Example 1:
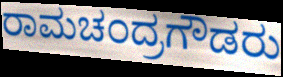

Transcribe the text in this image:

ರಾಮಚಂದ್ರಗೌಡರು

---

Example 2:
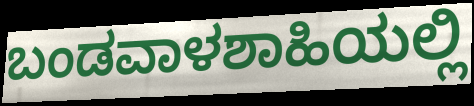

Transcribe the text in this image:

ಬಂಡವಾಳಶಾಹಿಯಲ್ಲಿ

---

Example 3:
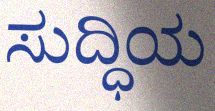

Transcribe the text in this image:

ಸುದ್ಧಿಯ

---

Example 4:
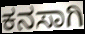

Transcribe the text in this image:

ಕನಸಾಗಿ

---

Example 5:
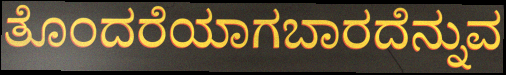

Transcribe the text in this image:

ತೊಂದರೆಯಾಗಬಾರದೆನ್ನುವ